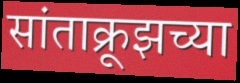
सांताक्रूझच्या